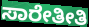
ಸಾರೇತೀತಿ